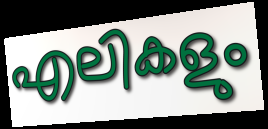
എലികളും